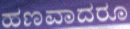
ಹಣವಾದರೂ